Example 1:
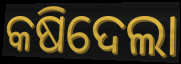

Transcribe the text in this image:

କଷିଦେଲା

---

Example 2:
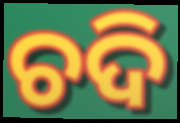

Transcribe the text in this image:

ଚଦି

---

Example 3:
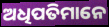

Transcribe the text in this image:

ଅଧିପତିମାନେ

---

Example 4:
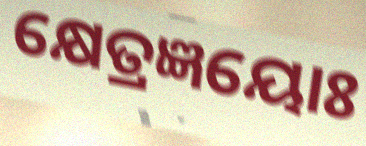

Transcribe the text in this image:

କ୍ଷେତ୍ରଜ୍ଞୟୋଃ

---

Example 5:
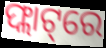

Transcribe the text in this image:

ଫ୍ଲାଟ୍‌ରେ